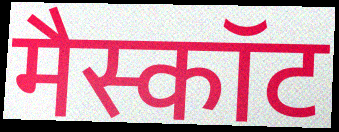
मैस्कॉट